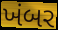
ખંબર